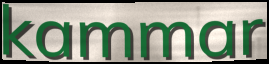
kammar